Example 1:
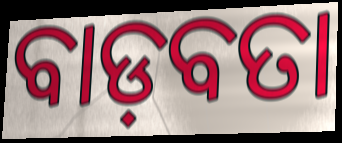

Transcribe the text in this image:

ବାଡ଼ବତା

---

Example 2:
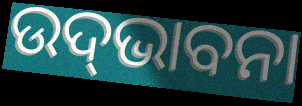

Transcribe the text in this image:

ଉଦ୍‍ଭାବନା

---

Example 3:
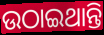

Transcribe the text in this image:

ଉଠାଇଥାନ୍ତି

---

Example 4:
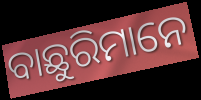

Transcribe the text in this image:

ବାଛୁରିମାନେ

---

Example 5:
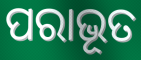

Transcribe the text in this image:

ପରାଭୂତ